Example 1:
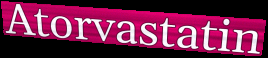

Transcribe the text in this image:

Atorvastatin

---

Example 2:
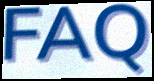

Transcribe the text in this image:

FAQ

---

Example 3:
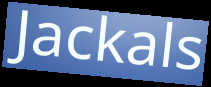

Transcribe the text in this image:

Jackals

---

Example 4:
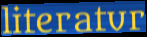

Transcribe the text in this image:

literatur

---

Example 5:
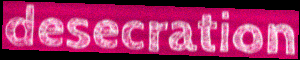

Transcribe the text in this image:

desecration